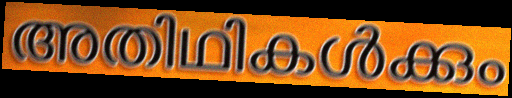
അതിഥികൾക്കും